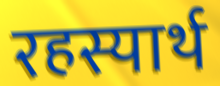
रहस्यार्थ